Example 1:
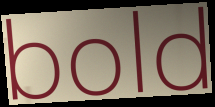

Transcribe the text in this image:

bold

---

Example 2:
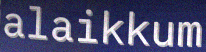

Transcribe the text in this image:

alaikkum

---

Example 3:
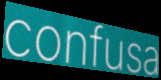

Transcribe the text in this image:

confusa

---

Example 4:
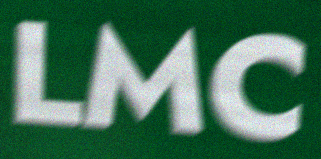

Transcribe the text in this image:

LMC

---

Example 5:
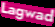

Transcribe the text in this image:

Lagwad